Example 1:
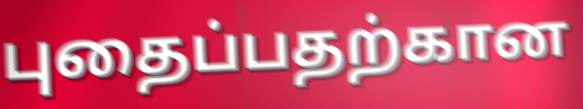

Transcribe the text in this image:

புதைப்பதற்கான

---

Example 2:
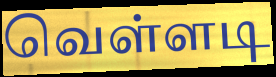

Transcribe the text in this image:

வெள்ளடி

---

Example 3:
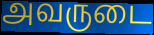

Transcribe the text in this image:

அவருடை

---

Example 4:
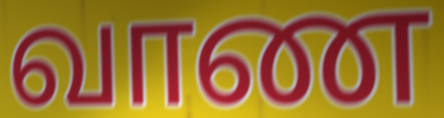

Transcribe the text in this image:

வாண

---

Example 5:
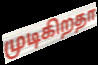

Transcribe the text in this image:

முடிகிறதா